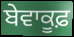
ਬੇਵਾਕੂਫ਼